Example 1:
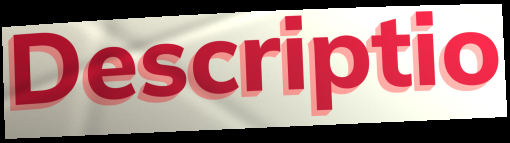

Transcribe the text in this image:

Descriptio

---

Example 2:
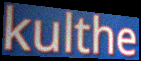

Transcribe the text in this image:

kulthe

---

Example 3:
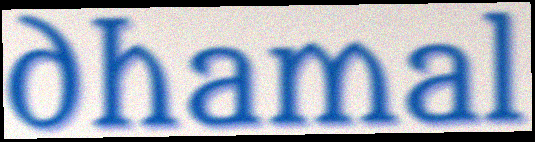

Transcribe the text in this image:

dhamal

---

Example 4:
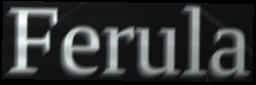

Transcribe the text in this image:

Ferula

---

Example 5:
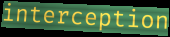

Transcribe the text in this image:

interception